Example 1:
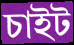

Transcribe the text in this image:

চাইট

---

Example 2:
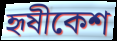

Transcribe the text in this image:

হৃষীকেশ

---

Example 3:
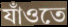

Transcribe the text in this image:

যাঁওতে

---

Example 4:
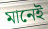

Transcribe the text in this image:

মানেই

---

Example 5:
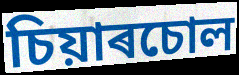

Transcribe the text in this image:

চিয়াৰচোল